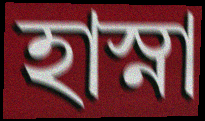
হাস্না